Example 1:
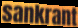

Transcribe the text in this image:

sankrant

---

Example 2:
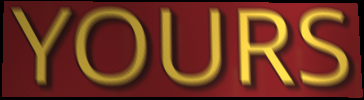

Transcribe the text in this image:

YOURS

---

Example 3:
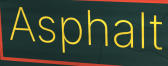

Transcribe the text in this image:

Asphalt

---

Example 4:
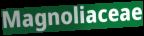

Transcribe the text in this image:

Magnoliaceae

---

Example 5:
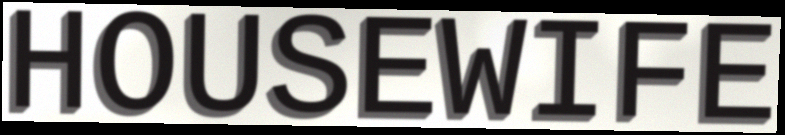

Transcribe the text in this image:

HOUSEWIFE